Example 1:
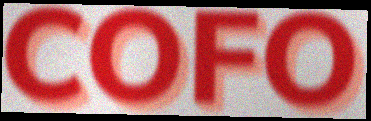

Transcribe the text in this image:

COFO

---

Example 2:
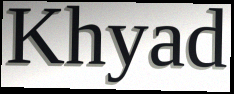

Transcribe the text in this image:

Khyad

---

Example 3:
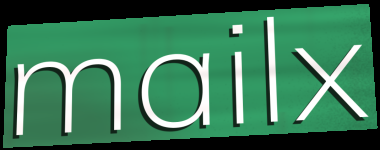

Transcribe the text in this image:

mailx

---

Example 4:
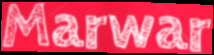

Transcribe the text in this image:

Marwar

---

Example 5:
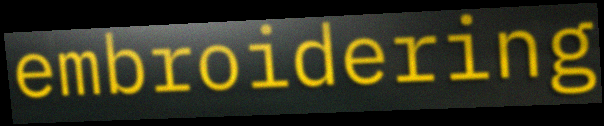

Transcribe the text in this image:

embroidering